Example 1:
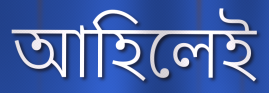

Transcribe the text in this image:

আহিলেই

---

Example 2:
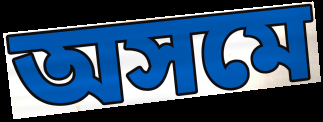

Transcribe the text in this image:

অসমে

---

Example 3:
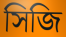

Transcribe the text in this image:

সিজি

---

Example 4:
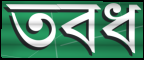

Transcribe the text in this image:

তবধ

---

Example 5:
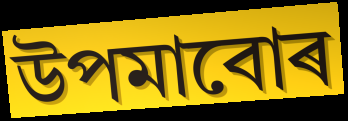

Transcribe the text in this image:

উপমাবোৰ